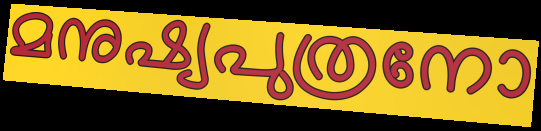
മനുഷ്യപുത്രനോ